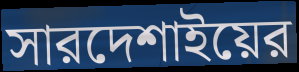
সারদেশাইয়ের